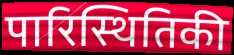
पारिस्थितिकी